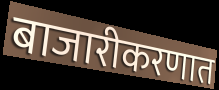
बाजारीकरणात